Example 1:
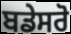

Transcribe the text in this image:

ਬਡੇਸਰੋ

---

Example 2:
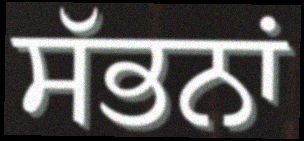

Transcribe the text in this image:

ਸੱਭਨਾਂ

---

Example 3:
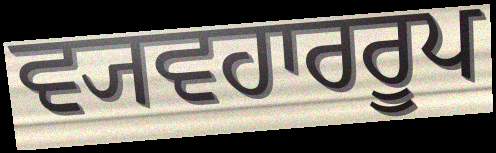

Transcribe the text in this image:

ਵ੍ਯਵਹਾਰਰੂਪ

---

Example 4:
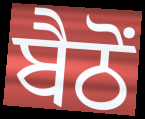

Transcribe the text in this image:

ਬੈਠੋਂ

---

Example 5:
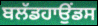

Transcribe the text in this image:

ਬਲੱਡਹਾਉਂਡਸ